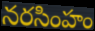
నరసింహం